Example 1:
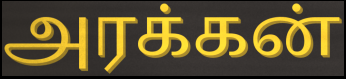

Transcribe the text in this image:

அரக்கன்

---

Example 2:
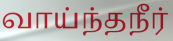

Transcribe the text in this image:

வாய்ந்தநீர்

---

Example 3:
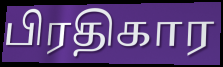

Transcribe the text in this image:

பிரதிகார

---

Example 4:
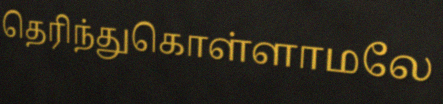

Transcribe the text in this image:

தெரிந்துகொள்ளாமலே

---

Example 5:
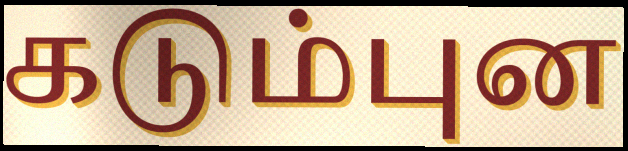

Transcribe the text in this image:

கடும்புன